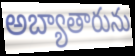
అబ్యాతారును